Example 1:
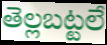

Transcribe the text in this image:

తెల్లబట్టలే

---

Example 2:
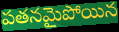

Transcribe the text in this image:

పతనమైపోయిన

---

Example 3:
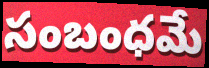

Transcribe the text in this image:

సంబంధమే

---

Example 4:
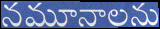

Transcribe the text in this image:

నమూనాలను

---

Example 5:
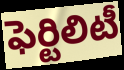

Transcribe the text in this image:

ఫెర్టిలిటీ